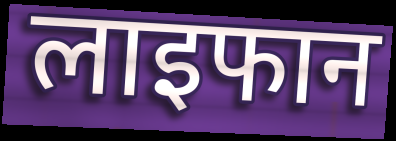
लाइफान